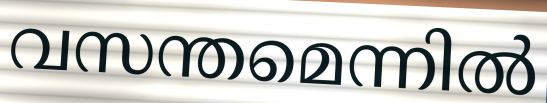
വസന്തമെന്നിൽ